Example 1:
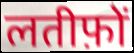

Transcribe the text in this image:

लतीफ़ों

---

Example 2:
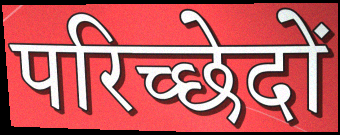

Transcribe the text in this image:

परिच्छेदों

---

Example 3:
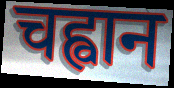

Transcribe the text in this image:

चह्वान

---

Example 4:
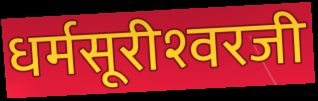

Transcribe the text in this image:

धर्मसूरीश्वरजी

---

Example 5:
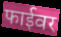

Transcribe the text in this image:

फाईवर